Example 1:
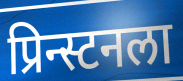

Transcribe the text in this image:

प्रिन्स्टनला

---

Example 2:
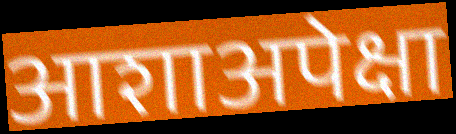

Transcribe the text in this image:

आशाअपेक्षा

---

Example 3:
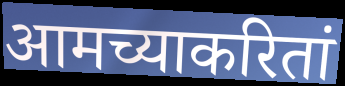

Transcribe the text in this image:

आमच्याकरितां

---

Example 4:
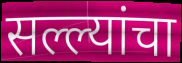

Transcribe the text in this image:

सल्ल्यांचा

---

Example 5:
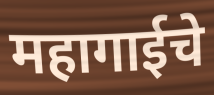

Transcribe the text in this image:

महागाईचे